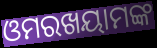
ଓମରଖୟାମଙ୍କ